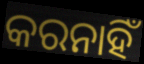
କରନାହିଁ